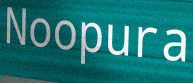
Noopura